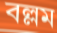
বল্লম